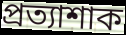
প্ৰত্যাশাক